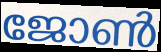
ജോൺ